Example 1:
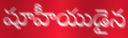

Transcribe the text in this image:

షూహీయుడైన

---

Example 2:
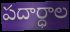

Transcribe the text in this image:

పదార్ధాల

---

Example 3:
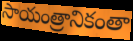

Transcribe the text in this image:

సాయంత్రానికంతా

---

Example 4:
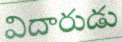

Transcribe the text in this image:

విదారుడు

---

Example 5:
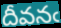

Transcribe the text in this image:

దీవనఁ